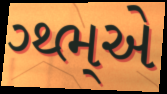
ગ્થ્ભ્એ